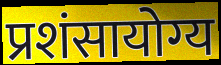
प्रशंसायोग्य